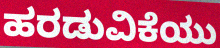
ಹರಡುವಿಕೆಯು